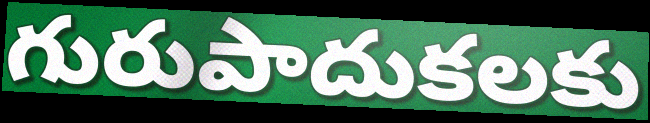
గురుపాదుకలకు